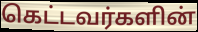
கெட்டவர்களின்